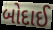
બોદાઈ